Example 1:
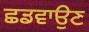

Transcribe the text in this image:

ਛਡਵਾਉਣ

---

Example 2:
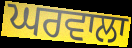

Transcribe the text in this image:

ਘਰਵਾਲਾ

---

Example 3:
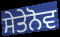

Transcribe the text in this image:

ਸੇਤੇਨੋਵ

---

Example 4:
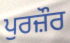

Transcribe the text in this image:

ਪੁਰਜ਼ੌਰ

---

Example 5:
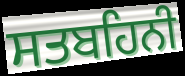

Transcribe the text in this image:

ਸਤਬਹਿਨੀ